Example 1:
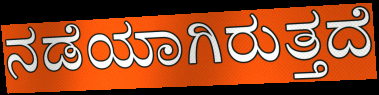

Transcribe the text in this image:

ನಡೆಯಾಗಿರುತ್ತದೆ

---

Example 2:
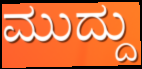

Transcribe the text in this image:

ಮುದ್ದು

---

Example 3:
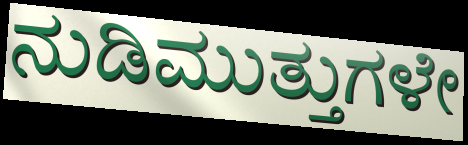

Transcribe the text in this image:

ನುಡಿಮುತ್ತುಗಳೇ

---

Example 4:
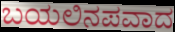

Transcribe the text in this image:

ಬಯಲಿನಪವಾದ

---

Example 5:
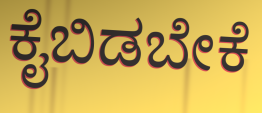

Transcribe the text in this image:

ಕೈಬಿಡಬೇಕೆ